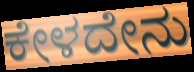
ಕೇಳದೇನು